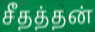
சீதத்தன்